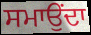
ਸਮਾਉਂਦਾ